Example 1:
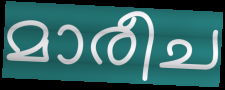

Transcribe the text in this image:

മാരീച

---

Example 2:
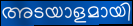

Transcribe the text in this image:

അടയാളമായി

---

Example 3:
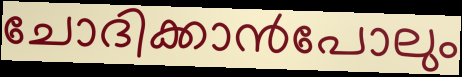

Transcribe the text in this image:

ചോദിക്കാൻപോലും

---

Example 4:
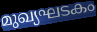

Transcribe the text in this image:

മുഖ്യഘടകം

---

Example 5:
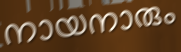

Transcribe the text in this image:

നായനാരും